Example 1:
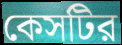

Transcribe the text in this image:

কেসটির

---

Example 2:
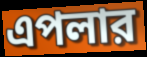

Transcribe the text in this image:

এপলার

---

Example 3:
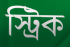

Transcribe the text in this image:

স্ট্রিক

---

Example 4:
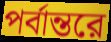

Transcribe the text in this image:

পর্বান্তরে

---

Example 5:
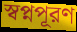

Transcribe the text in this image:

স্বপ্নপূরণ